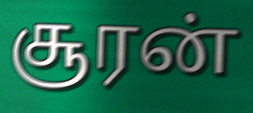
சூரன்